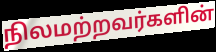
நிலமற்றவர்களின்